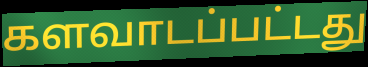
களவாடப்பட்டது